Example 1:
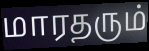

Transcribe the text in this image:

மாரதரும்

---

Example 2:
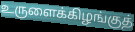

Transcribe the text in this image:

உருளைக்கிழங்குத்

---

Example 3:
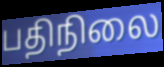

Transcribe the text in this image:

பதிநிலை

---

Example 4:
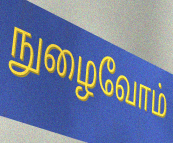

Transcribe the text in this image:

நுழைவோம்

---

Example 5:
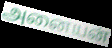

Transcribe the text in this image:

அனையன்